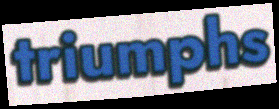
triumphs